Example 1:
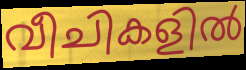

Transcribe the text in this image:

വീചികളിൽ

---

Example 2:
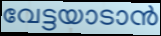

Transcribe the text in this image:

വേട്ടയാടാൻ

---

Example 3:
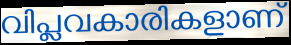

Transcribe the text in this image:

വിപ്ലവകാരികളാണ്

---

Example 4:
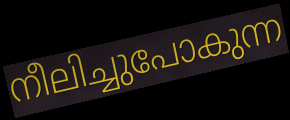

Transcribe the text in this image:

നീലിച്ചുപോകുന്ന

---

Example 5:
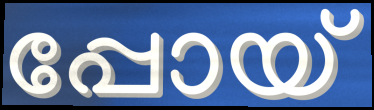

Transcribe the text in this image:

പ്പോയ്